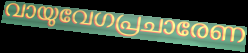
വായുവേഗപ്രചാരേണ